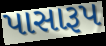
પાસારૂપ